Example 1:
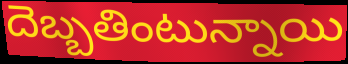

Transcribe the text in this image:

దెబ్బతింటున్నాయి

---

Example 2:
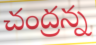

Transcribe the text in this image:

చంద్రన్న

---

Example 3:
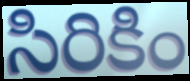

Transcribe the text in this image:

సిరికిం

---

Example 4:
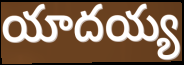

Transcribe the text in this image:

యాదయ్య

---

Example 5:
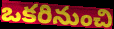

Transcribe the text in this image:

ఒకరినుంచి